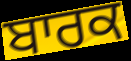
ਬਾਰਕ